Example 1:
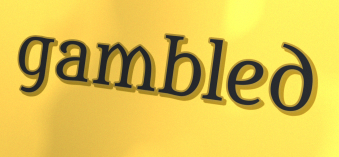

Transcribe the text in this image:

gambled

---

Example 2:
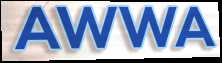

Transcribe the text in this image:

AWWA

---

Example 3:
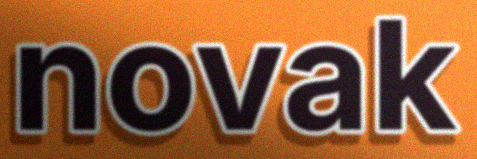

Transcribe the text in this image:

novak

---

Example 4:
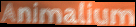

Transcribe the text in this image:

Animalium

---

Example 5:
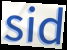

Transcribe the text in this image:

sid